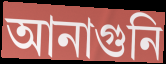
আনাগুনি